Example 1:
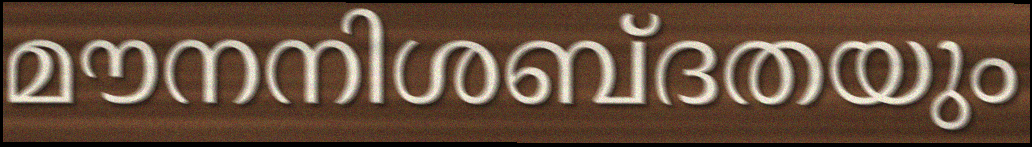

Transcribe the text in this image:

മൗനനിശബ്ദതയും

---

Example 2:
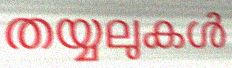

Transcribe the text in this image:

തയ്യലുകൾ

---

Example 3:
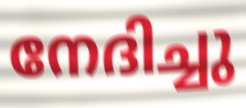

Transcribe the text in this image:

നേദിച്ചു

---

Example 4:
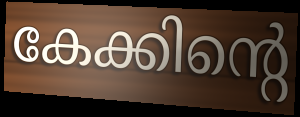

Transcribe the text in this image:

കേക്കിന്റെ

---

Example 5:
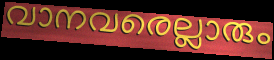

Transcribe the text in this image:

വാനവരെല്ലാരും